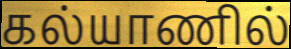
கல்யாணில்